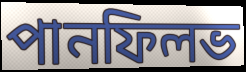
পানফিলভ